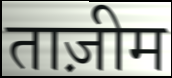
ताज़ीम